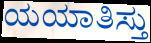
ಯಯಾತಿಸ್ತು